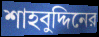
শাহবুদ্দিনের